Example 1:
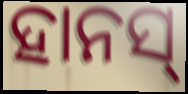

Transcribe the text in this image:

ହାନସ୍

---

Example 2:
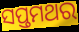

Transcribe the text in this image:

ସପ୍ତମଥର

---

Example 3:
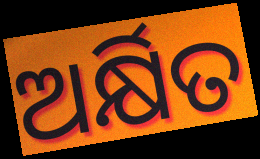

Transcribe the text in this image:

ଅର୍କ୍ଷିତ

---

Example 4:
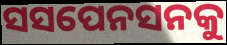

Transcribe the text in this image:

ସସପେନସନକୁ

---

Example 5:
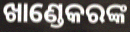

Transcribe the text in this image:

ଖାଣ୍ଡେକରଙ୍କ